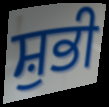
ਸ਼ੁਭੀ